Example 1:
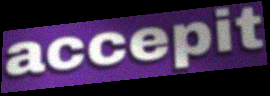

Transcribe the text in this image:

accepit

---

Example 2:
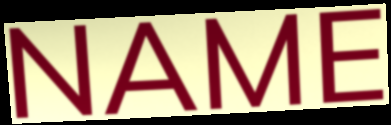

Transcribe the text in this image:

NAME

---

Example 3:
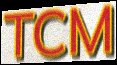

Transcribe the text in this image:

TCM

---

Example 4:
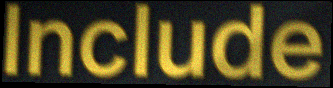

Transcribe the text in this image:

Include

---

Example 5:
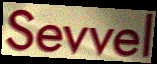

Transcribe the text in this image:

Sevvel